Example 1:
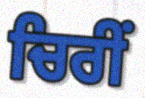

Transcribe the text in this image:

ਚਿਰੀਂ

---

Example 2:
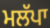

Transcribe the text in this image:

ਮਲੱਪਾ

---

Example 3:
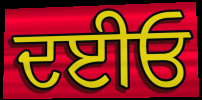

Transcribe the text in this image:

ਦਈਓ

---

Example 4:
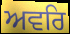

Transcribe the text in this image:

ਅਵਰਿ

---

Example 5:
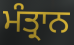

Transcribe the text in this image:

ਮੰਤ੍ਰਾਨ